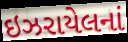
ઇઝરાયેલનાં